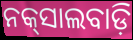
ନକ୍‌ସାଲବାଡ଼ି